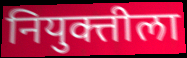
नियुक्तीला